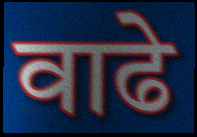
वाढे